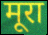
मूरा